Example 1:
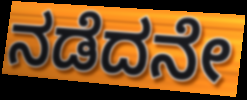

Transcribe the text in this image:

ನಡೆದನೇ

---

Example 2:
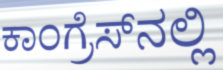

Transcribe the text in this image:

ಕಾಂಗ್ರೆಸ್‌ನಲ್ಲಿ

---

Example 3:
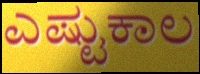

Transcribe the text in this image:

ಎಷ್ಟುಕಾಲ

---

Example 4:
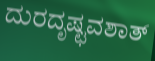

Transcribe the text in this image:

ದುರದೃಷ್ಟವಶಾತ್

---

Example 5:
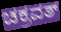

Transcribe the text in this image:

ಚಕ್ರವತ್